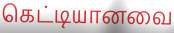
கெட்டியானவை